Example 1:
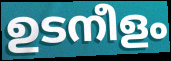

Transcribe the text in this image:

ഉടനീളം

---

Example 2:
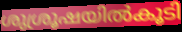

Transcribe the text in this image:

ശുശ്രൂഷയിൽകൂടി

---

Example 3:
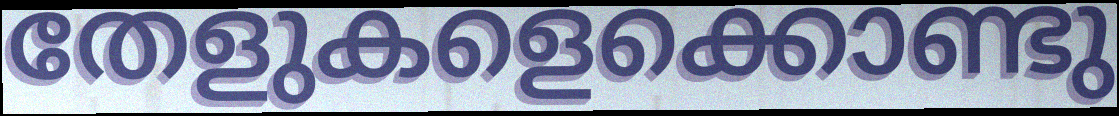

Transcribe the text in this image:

തേളുകളെക്കൊണ്ടു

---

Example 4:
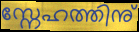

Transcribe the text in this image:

സ്നേഹത്തിനു്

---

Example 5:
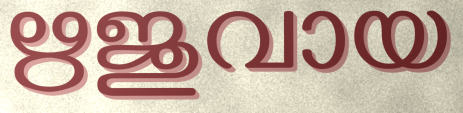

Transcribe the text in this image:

ഋജുവായ